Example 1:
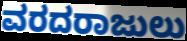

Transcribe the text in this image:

ವರದರಾಜುಲು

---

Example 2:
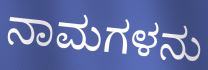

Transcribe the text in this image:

ನಾಮಗಳನು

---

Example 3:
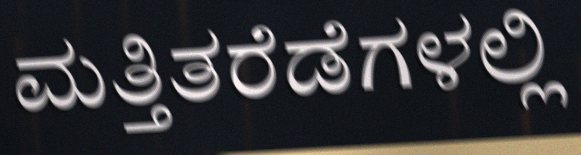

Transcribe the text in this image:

ಮತ್ತಿತರೆಡೆಗಳಲ್ಲಿ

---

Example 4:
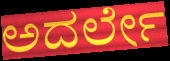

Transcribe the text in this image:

ಅದರ್ಲೇ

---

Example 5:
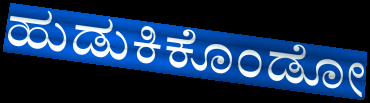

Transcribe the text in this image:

ಹುಡುಕಿಕೊಂಡೋ